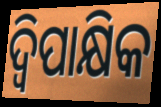
ଦ୍ୱିପାକ୍ଷିକ